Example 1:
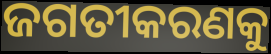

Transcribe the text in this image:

ଜଗତୀକରଣକୁ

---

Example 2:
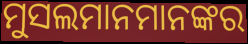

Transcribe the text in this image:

ମୁସଲମାନମାନଙ୍କର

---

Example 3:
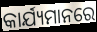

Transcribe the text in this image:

କାର୍ଯ୍ୟମାନରେ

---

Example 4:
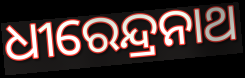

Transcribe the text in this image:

ଧୀରେନ୍ଦ୍ରନାଥ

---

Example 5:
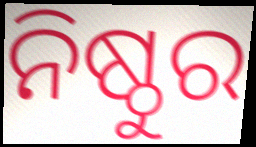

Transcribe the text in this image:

ନିଷ୍ଠୁର